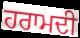
ਹਰਾਮਦੀ